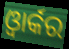
ଓ୍ବାର୍କର